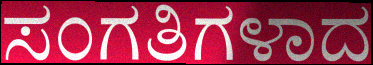
ಸಂಗತಿಗಳಾದ